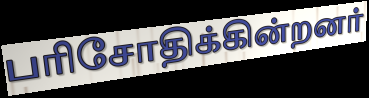
பரிசோதிக்கின்றனர்